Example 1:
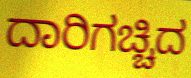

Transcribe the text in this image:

ದಾರಿಗಚ್ಚಿದ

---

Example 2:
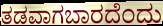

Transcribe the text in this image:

ತಡವಾಗಬಾರದೆಂದು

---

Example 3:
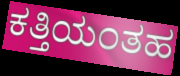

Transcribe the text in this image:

ಕತ್ತಿಯಂತಹ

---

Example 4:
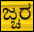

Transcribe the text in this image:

ಜ್ಚರ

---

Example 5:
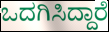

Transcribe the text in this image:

ಒದಗಿಸಿದ್ದಾರೆ